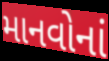
માનવોનાં